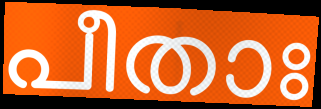
പീതാഃ